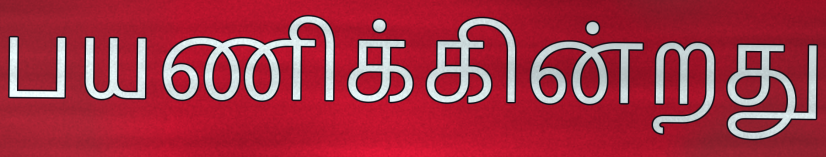
பயணிக்கின்றது